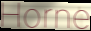
Horne